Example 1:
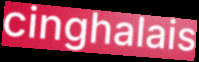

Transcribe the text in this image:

cinghalais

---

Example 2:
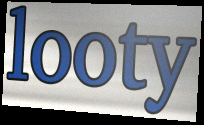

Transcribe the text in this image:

looty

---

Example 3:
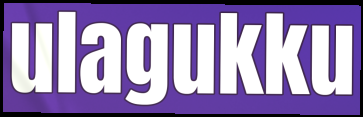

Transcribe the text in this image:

ulagukku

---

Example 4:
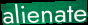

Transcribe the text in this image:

alienate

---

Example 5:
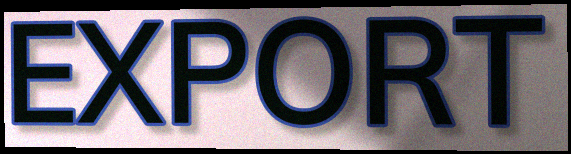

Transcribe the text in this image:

EXPORT